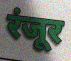
रंजूर